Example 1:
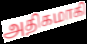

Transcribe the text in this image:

அதிகமாகி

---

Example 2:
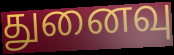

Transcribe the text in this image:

துனைவு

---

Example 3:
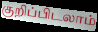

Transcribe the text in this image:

குறிப்பிடலாம்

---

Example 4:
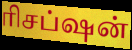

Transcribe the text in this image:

ரிசப்ஷன்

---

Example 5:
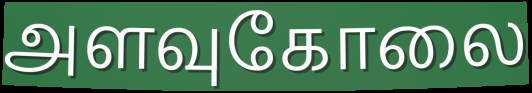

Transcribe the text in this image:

அளவுகோலை